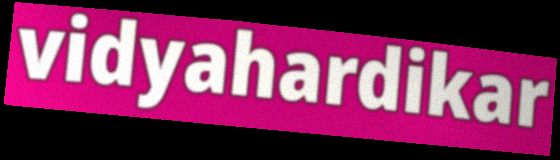
vidyahardikar